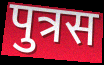
पुत्रस